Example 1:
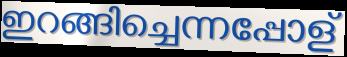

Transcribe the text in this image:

ഇറങ്ങിച്ചെന്നപ്പോള്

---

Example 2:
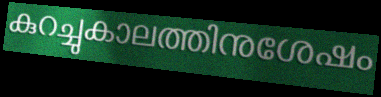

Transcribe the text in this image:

കുറച്ചുകാലത്തിനുശേഷം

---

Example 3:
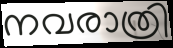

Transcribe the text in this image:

നവരാത്രി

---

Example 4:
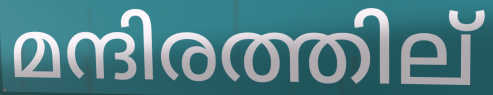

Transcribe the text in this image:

മന്ദിരത്തില്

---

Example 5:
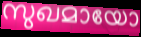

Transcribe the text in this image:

സുഖമായോ